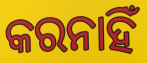
କରନାହିଁ